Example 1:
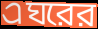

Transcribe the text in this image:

এঘরের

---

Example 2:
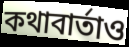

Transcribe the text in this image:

কথাবার্তাও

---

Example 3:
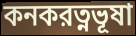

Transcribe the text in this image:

কনকরত্নভূষা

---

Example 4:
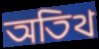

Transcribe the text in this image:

অতিথ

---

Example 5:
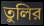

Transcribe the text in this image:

তুলির